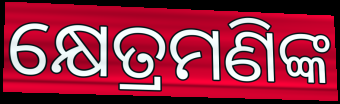
କ୍ଷେତ୍ରମଣିଙ୍କ